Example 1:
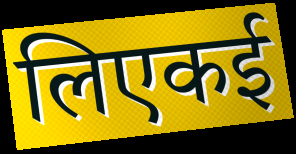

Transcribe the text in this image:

लिएकई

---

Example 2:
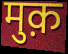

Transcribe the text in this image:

मुक़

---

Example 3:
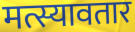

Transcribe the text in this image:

मत्स्यावतार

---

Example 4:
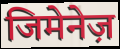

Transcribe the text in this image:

जिमेनेज़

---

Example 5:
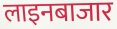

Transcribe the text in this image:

लाइनबाजार